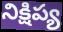
నిక్షిప్య